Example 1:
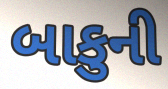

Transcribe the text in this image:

બાકુની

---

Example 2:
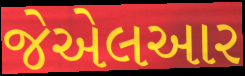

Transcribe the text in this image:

જેએલઆર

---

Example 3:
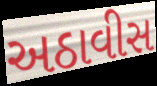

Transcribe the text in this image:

અઠાવીસ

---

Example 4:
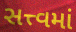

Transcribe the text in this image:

સત્ત્વમાં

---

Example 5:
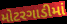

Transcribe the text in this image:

મોટરગાડીમાં